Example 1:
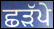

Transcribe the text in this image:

ਛੜੱਪੇ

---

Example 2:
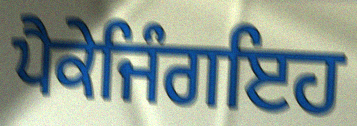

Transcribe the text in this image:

ਪੈਕੇਜਿੰਗਇਹ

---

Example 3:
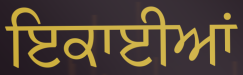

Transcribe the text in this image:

ਇਕਾਈਆਂ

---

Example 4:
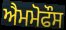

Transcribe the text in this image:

ਐਮਮੋਫੌਸ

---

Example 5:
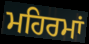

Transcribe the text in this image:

ਮਹਿਰਮਾਂ